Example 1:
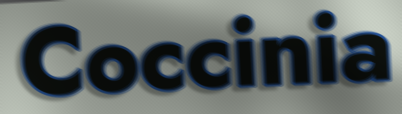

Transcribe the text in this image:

Coccinia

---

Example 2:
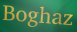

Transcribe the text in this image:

Boghaz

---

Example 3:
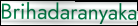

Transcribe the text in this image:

Brihadaranyaka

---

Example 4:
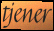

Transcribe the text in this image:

tjener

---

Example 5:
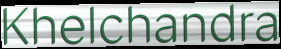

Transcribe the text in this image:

Khelchandra